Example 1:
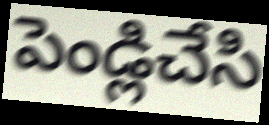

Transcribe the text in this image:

పెండ్లిచేసి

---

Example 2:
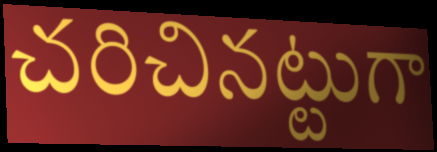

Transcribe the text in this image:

చరిచినట్టుగా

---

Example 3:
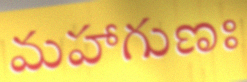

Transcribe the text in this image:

మహాగుణః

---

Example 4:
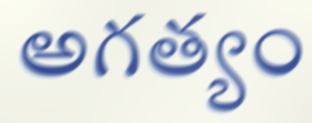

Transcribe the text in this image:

అగత్యం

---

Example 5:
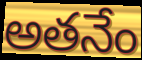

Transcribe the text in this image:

అతనేం